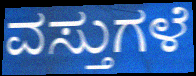
ವಸ್ತುಗಳೆ